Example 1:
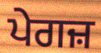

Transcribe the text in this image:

ਪੇਗਜ਼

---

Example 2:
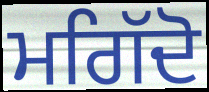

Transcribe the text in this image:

ਮਗਿੱਦੋ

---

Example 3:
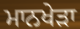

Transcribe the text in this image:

ਮਾਨਖੇੜਾ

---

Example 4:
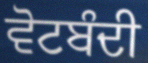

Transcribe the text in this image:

ਵੋਟਬੰਦੀ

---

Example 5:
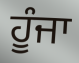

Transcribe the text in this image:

ਹੂੰਜਾ